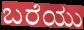
ಬರೆಯು